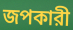
জপকারী